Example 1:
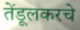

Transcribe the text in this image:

तेंडूलकरचे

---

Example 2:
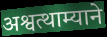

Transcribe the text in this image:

अश्वत्थाम्याने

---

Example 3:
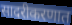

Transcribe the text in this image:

सादरीकरणात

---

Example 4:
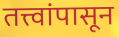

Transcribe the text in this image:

तत्त्वांपासून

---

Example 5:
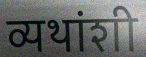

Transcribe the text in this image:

व्यथांशी